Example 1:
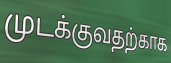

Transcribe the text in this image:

முடக்குவதற்காக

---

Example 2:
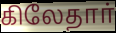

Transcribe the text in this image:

கிலேதார்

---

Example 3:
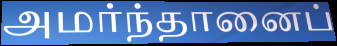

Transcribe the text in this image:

அமர்ந்தானைப்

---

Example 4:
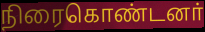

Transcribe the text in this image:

நிரைகொண்டனர்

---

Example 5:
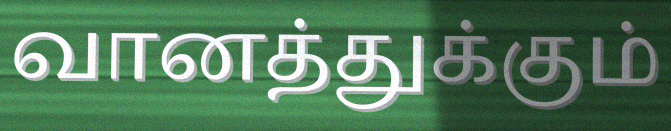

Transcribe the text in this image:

வானத்துக்கும்